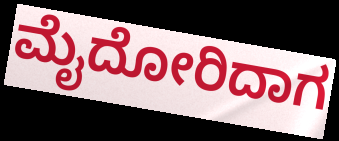
ಮೈದೋರಿದಾಗ